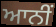
ਆਨੀਂ